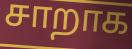
சாறாக